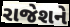
રાજેશને